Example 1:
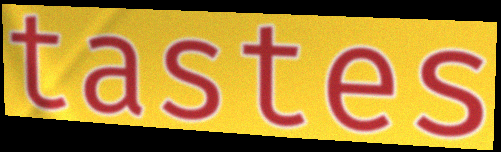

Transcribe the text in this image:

tastes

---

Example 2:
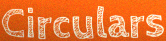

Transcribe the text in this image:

Circulars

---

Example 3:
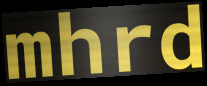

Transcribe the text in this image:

mhrd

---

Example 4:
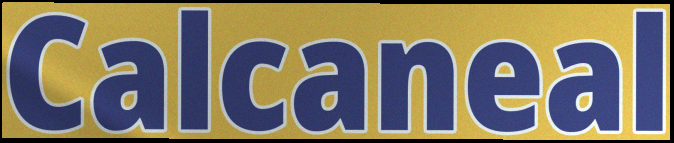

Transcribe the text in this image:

Calcaneal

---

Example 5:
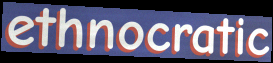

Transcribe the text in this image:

ethnocratic